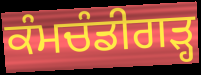
ਕੰਮਚੰਡੀਗੜ੍ਹ